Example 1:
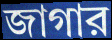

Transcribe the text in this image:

জাগার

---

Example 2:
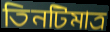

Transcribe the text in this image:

তিনটিমাত্র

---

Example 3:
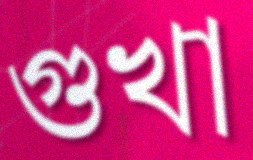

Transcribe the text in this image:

গুখা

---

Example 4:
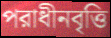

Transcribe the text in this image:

পরাধীনবৃত্তি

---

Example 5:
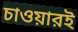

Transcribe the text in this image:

চাওয়ারই